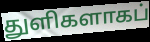
துளிகளாகப்